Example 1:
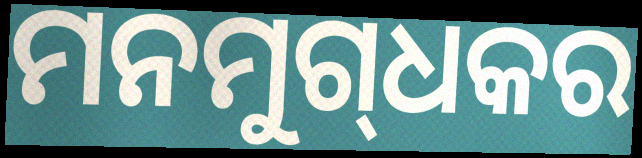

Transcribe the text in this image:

ମନମୁଗ୍‌ଧକର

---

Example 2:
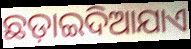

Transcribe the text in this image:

ଛଡ଼ାଇଦିଆଯାଏ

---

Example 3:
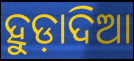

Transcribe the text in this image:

ହୁଡ଼ାଦିଆ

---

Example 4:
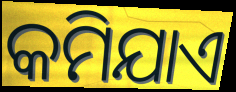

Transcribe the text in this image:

କମିଯାଏ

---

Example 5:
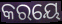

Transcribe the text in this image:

କରୟେ